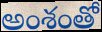
అంశంతో